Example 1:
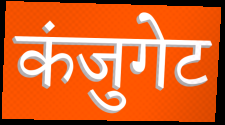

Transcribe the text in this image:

कंजुगेट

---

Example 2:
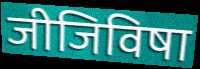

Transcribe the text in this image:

जीजिविषा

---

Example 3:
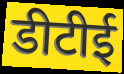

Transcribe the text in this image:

डीटीई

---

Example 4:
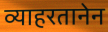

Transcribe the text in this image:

व्याहरतानेन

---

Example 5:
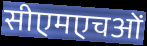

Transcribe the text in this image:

सीएमएचओं